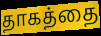
தாகத்தை